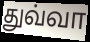
துவ்வா